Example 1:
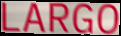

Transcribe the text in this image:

LARGO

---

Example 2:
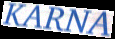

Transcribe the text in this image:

KARNA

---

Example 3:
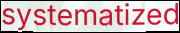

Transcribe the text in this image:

systematized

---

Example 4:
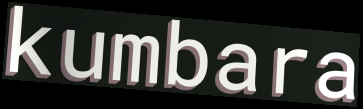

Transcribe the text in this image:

kumbara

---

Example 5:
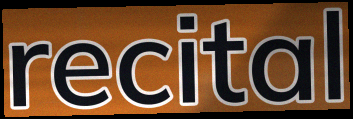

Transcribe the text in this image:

recital